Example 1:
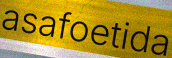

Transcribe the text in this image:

asafoetida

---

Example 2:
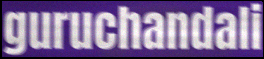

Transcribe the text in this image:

guruchandali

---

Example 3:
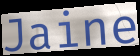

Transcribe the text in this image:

Jaine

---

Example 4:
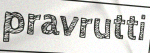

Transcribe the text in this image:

pravrutti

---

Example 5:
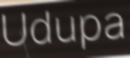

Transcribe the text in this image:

Udupa